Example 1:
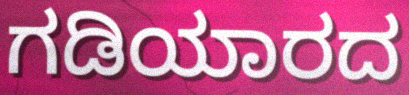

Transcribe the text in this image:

ಗಡಿಯಾರದ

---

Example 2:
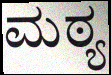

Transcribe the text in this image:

ಮಠ್ಯ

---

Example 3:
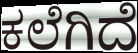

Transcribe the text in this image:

ಕಲೆಗಿದೆ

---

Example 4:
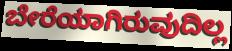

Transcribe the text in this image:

ಬೇರೆಯಾಗಿರುವುದಿಲ್ಲ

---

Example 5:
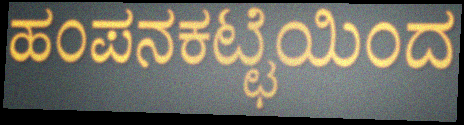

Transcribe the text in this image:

ಹಂಪನಕಟ್ಟೆಯಿಂದ